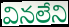
వినలేని